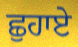
ਛੁਹਾਏ